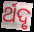
ର୍ଥଦୃ